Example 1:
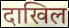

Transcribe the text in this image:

दाखिल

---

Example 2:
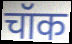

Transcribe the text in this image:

चॉक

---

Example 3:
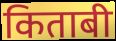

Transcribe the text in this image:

किताबी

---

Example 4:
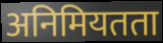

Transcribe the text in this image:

अनिमियतता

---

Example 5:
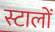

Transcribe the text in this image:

स्टालों